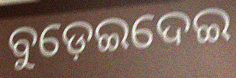
ବୁଡ଼େଇଦେଇ